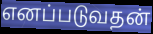
எனப்படுவதன்